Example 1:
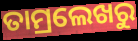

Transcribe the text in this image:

ତାମ୍ରଲେଖରୁ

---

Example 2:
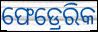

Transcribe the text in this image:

ଫେଡ୍ରେରିକ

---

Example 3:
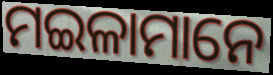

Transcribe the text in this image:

ମଇଳାମାନେ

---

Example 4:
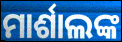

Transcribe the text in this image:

ମାର୍ଶାଲଙ୍କ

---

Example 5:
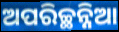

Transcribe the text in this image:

ଅପରିଚ୍ଛନ୍ନିଆ